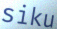
siku